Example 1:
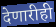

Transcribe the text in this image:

देणारीही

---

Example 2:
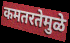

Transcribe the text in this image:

कमतरतेमुळे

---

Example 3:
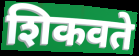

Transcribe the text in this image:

शिकवते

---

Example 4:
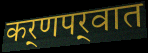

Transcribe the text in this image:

कर्णपर्वात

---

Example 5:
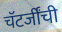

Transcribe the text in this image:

चॅटर्जींची